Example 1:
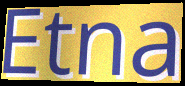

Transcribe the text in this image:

Etna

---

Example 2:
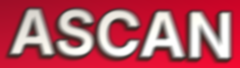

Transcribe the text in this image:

ASCAN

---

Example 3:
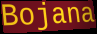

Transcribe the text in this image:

Bojana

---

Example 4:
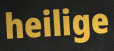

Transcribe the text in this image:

heilige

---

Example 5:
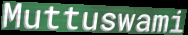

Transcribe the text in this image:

Muttuswami